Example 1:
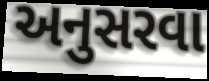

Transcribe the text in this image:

અનુસરવા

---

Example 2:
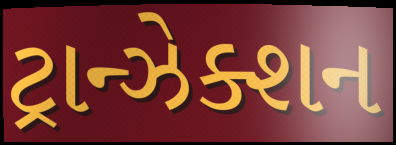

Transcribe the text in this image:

ટ્રાન્ઝેક્શન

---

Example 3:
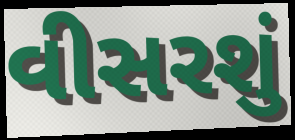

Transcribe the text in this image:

વીસરશું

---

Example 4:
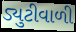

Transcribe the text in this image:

ડ્યુટીવાળી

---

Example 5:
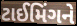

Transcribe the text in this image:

ટાઈમિંગને